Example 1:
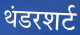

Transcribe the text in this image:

थंडरशर्ट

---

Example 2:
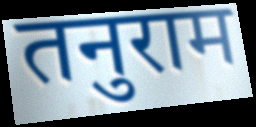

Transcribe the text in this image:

तनुराम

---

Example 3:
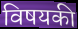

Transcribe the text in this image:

विषयकी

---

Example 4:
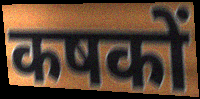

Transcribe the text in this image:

कषकों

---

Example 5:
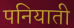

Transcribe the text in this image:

पनियाती